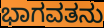
ಭಾಗವತನು